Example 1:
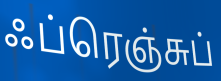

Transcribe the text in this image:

ஃப்ரெஞ்சுப்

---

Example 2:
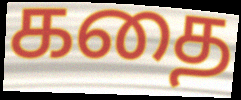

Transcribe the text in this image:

கதை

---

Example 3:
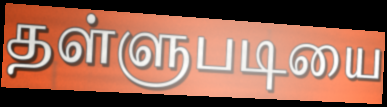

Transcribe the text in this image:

தள்ளுபடியை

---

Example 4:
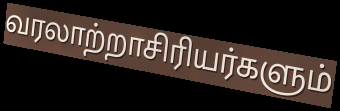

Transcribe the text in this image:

வரலாற்றாசிரியர்களும்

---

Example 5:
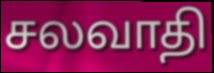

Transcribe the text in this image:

சலவாதி